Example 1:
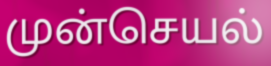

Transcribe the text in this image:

முன்செயல்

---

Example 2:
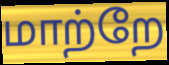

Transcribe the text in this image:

மாற்றே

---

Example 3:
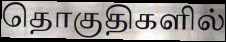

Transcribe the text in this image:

தொகுதிகளில்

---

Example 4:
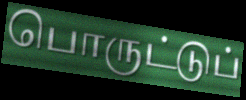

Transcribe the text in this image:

பொருட்டுப்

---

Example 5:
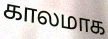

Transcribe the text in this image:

காலமாக